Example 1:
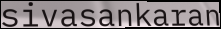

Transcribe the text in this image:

sivasankaran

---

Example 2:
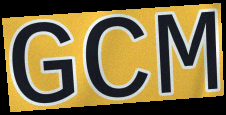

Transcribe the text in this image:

GCM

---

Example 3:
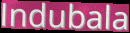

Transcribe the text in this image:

Indubala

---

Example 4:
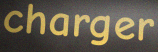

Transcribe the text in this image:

charger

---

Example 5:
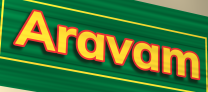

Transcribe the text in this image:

Aravam